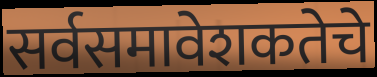
सर्वसमावेशकतेचे